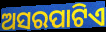
ଅସରପାଟିଏ